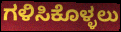
ಗಳಿಸಿಕೊಳ್ಳಲು